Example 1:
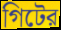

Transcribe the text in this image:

গিটের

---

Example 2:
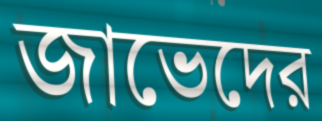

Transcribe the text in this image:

জাভেদের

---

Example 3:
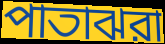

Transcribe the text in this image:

পাতাঝরা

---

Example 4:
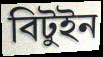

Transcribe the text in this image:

বিটুইন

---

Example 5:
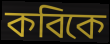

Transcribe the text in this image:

কবিকে